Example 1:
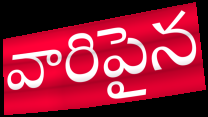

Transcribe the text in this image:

వారిపైన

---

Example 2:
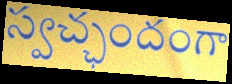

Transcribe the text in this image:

స్వచ్ఛందంగా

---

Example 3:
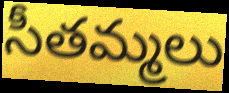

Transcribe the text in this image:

సీతమ్మలు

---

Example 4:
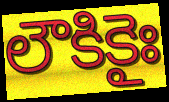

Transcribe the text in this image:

లౌకికైః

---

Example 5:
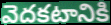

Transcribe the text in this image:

వెదకటానికి